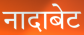
नादाबेट